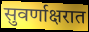
सुवर्णाक्षरात